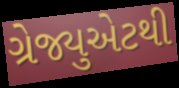
ગ્રેજ્યુએટથી